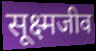
सूक्ष्मजीव